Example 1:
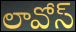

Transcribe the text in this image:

లావోస్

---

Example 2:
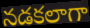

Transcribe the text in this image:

నడకలాగా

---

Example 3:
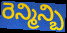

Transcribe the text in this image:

రెన్మిన్బి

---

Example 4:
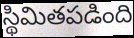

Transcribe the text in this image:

స్థిమితపడింది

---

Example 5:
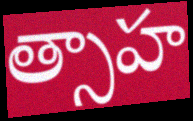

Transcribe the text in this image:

త్సాహ